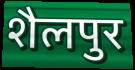
शैलपुर